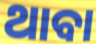
ଥାବା